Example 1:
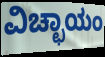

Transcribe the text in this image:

ವಿಚ್ಛಾಯಂ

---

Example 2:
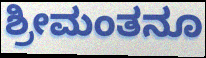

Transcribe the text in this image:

ಶ್ರೀಮಂತನೂ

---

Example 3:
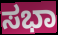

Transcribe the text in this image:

ಸಭಾ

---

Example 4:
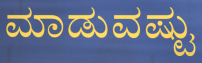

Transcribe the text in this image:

ಮಾಡುವಷ್ಟು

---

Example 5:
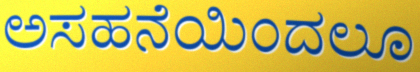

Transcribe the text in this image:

ಅಸಹನೆಯಿಂದಲೂ